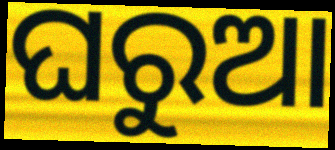
ଘରୁଆ